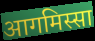
आगमिस्सा